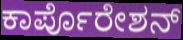
ಕಾರ್ಪೊರೇಶನ್